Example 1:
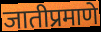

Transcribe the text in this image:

जातीप्रमाणे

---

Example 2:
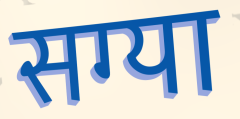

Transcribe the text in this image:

सग्या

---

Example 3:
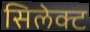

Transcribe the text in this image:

सिलेक्ट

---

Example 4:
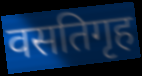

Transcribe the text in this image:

वसतिगृह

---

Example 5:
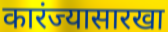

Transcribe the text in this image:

कारंज्यासारखा